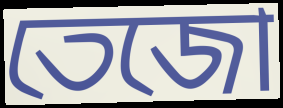
তেজো